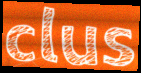
clus